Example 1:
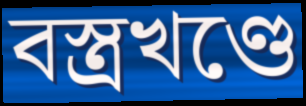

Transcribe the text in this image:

বস্ত্রখণ্ডে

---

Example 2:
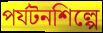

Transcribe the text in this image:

পর্যটনশিল্পে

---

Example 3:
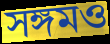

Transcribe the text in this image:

সঙ্গমও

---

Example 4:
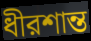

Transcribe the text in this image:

ধীরশান্ত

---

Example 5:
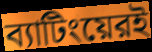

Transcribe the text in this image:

ব্যাটিংয়েরই